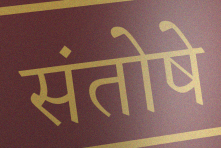
संतोषे